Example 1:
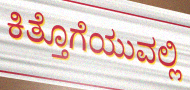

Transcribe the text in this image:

ಕಿತ್ತೊಗೆಯುವಲ್ಲಿ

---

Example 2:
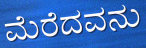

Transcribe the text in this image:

ಮೆರೆದವನು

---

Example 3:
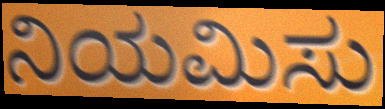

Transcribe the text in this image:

ನಿಯಮಿಸು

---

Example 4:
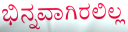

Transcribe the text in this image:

ಭಿನ್ನವಾಗಿರಲಿಲ್ಲ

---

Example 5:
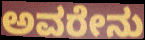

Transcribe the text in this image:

ಅವರೇನು